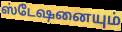
ஸ்டேஷனையும்